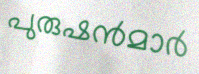
പുരുഷൻമാർ